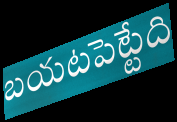
బయటపెట్టేది